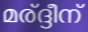
മര്ദ്ദീന്